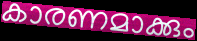
കാരണമാക്കും